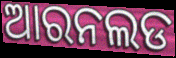
ଆରନଲଡ